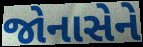
જોનાસેને